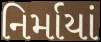
નિર્માયાં